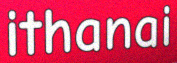
ithanai